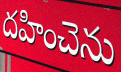
దహించెను